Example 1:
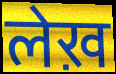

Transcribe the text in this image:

लेख़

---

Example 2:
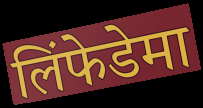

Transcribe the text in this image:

लिंफेडेमा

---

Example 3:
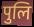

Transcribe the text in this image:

पुलि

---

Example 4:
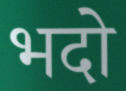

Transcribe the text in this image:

भदो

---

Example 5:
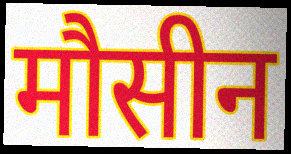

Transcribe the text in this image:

मौसीन